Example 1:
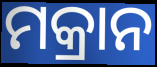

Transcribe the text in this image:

ମକ୍ରାନ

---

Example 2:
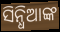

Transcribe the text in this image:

ସିନ୍ଧିଆଙ୍କ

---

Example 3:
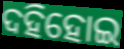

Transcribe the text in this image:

ଦହିହୋଇ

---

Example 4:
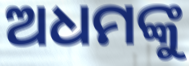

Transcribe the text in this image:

ଅଧମଙ୍କୁ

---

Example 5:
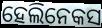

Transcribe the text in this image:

ହେଲିନେକସ